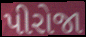
પીરોજા